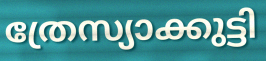
ത്രേസ്യാക്കുട്ടി